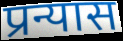
प्रन्यास